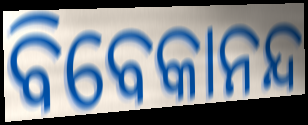
ବିବେକାନନ୍ଦ